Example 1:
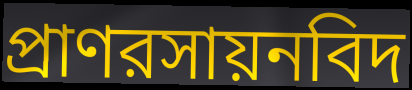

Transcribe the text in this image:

প্রাণরসায়নবিদ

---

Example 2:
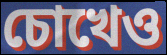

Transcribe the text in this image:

চোখেও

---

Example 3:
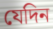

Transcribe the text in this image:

যেদিন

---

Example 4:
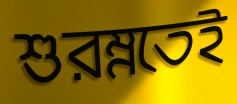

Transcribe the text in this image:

শুরম্নতেই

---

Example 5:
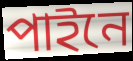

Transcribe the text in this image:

পাইনে